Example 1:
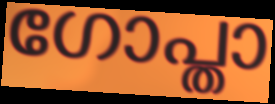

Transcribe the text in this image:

ഗോപ്താ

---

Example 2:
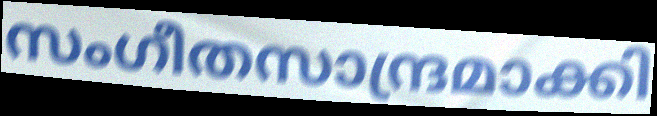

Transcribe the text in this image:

സംഗീതസാന്ദ്രമാക്കി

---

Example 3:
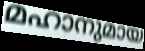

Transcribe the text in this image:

മഹാനുമായ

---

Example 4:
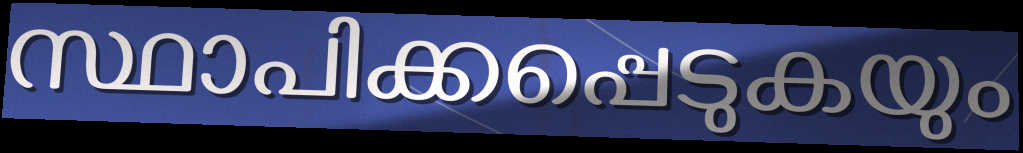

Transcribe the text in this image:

സ്ഥാപിക്കപ്പെടുകയും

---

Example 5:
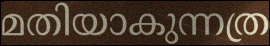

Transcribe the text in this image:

മതിയാകുന്നത്ര